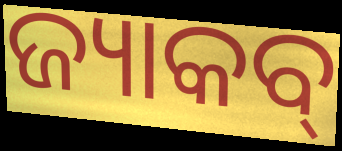
ଜ୍ୟାକବ୍